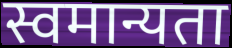
स्वमान्यता